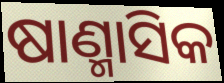
ଷାଣ୍ମାସିକ